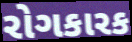
રોગકારક